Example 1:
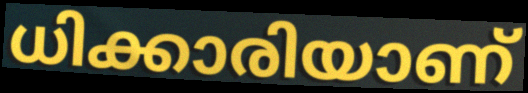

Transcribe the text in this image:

ധിക്കാരിയാണ്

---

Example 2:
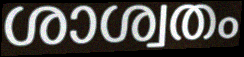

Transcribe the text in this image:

ശാശ്വതം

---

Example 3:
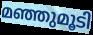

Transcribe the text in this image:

മഞ്ഞുമൂടി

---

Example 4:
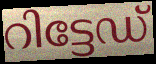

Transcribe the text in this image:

റിട്ടേഡ്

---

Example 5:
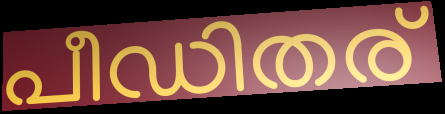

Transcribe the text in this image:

പീഡിതര്